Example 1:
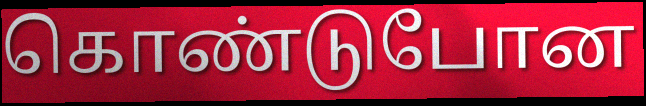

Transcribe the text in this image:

கொண்டுபோன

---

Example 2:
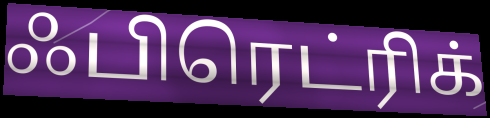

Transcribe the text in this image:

ஃபிரெட்ரிக்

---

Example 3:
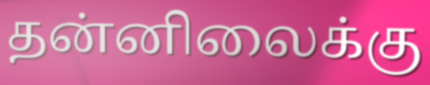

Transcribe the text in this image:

தன்னிலைக்கு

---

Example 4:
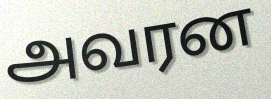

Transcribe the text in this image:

அவரன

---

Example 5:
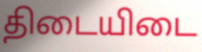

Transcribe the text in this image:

திடையிடை